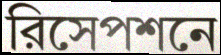
রিসেপশনে